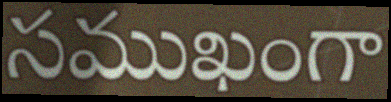
సముఖంగా